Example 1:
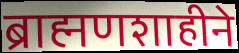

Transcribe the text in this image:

ब्राह्मणशाहीने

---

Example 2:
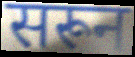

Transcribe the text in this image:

सरून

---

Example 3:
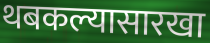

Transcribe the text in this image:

थबकल्यासारखा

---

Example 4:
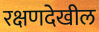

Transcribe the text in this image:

रक्षणदेखील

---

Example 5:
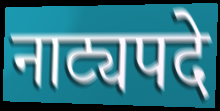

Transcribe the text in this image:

नाट्यपदे